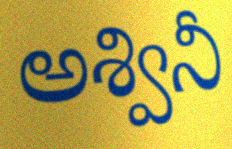
అశ్వినీ